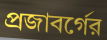
প্রজাবর্গের